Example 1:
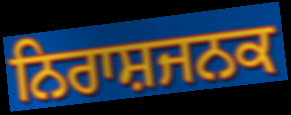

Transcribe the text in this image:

ਨਿਰਾਸ਼ਜਨਕ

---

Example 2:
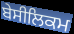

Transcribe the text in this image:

ਬੇਸੀਲਿਕਮ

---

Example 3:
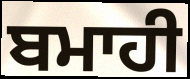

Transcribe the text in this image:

ਬਮਾਹੀ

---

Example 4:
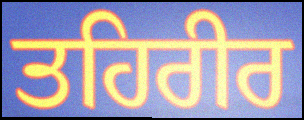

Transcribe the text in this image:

ਤਹਿਰੀਰ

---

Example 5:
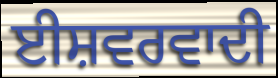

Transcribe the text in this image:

ਈਸ਼ਵਰਵਾਦੀ